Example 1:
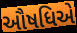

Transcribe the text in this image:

ઔષધિએ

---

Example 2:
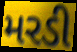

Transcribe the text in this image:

મરડી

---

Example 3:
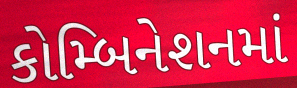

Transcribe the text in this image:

કોમ્બિનેશનમાં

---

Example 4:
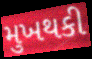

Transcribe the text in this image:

મુખથકી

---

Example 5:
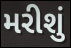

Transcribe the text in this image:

મરીશું